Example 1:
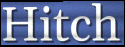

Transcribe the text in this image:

Hitch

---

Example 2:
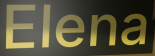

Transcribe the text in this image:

Elena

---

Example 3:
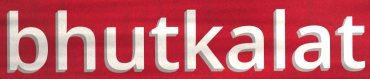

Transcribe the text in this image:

bhutkalat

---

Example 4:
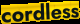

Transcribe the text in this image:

cordless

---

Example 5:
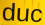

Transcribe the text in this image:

duc